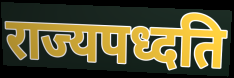
राज्यपध्दति